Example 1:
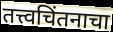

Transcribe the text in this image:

तत्त्वचिंतनाचा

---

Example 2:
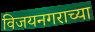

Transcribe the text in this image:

विजयनगराच्या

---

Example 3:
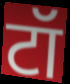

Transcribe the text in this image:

टॉ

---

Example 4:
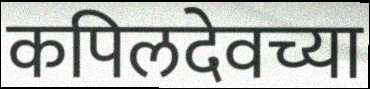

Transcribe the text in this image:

कपिलदेवच्या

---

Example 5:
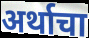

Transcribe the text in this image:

अर्थाचा